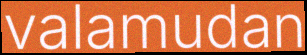
valamudan